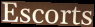
Escorts